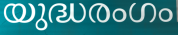
യുദ്ധരംഗം